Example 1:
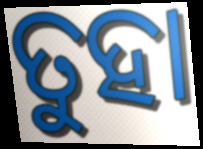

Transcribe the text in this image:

ତୁହା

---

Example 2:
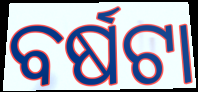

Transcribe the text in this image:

ବର୍ଷଟା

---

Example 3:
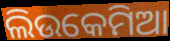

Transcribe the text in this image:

ଲିଉକେମିଆ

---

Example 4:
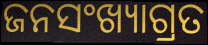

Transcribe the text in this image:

ଜନସଂଖ୍ୟାଗ୍ରତ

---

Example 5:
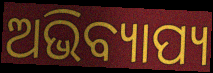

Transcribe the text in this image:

ଅଭିବ୍ୟାପ୍ୟ